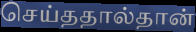
செய்ததால்தான்